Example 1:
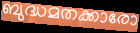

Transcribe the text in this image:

ബുദ്ധമതക്കാരോ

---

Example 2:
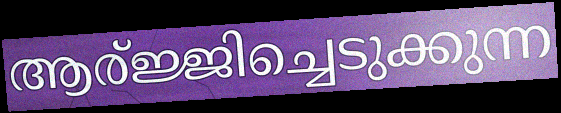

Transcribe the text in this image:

ആര്ജ്ജിച്ചെടുക്കുന്ന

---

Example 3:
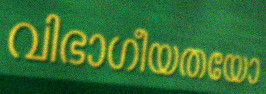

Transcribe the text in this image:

വിഭാഗീയതയോ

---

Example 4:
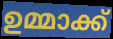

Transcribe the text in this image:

ഉമ്മാക്ക്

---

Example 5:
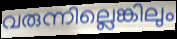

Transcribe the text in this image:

വരുന്നില്ലെങ്കിലും